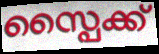
സ്പൈക്ക്